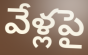
వేళ్లపై